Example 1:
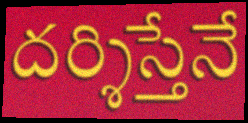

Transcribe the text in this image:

దర్శిస్తేనే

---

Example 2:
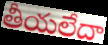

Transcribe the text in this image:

తీయలేదా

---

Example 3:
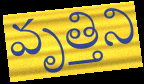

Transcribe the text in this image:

వృత్తిని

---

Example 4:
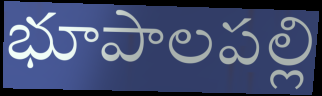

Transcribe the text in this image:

భూపాలపల్లి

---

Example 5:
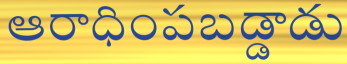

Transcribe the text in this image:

ఆరాధింపబడ్డాడు